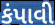
કંપાવી